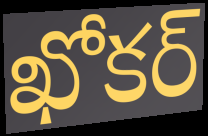
ఖోకర్